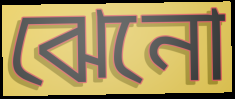
ঝেনো